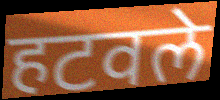
हटवले